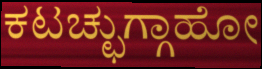
ಕಟಚ್ಛುಗ್ಗಾಹೋ